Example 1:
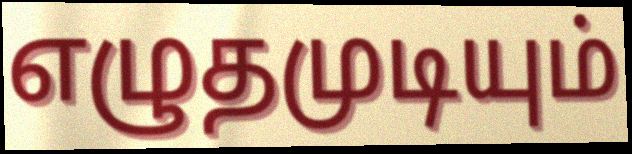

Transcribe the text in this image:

எழுதமுடியும்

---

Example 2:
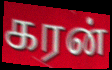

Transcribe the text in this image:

கரன்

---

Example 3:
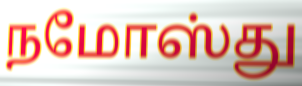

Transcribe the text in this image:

நமோஸ்து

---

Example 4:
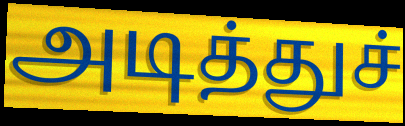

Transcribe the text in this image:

அடித்துச்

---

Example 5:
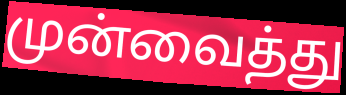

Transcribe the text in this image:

முன்வைத்து